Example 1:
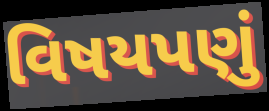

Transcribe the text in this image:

વિષયપણું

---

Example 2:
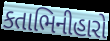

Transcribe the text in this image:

કતાભિનીહારો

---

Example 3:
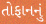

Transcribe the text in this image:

તોફાનનું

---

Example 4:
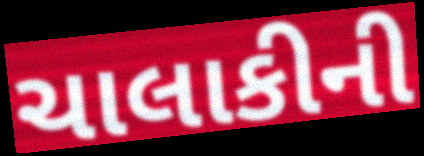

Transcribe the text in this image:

ચાલાકીની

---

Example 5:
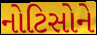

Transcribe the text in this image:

નોટિસોને